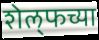
शेल्फच्या